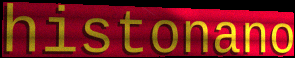
histonano